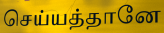
செய்யத்தானே